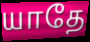
யாதே